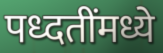
पध्दतींमध्ये